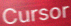
Cursor